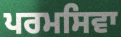
ਪਰਮਸਿਵਾ